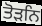
ਤੋੜਨਿ